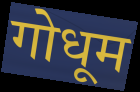
गोधूम